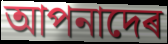
আপনাদেৰ